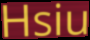
Hsiu